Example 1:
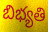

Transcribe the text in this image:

బిభ్యతి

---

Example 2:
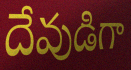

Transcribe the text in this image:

దేవుడిగా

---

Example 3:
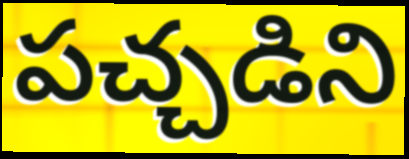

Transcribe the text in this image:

పచ్చడిని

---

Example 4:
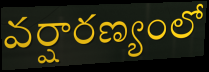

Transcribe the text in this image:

వర్షారణ్యంలో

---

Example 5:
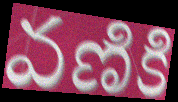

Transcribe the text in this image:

వణికి